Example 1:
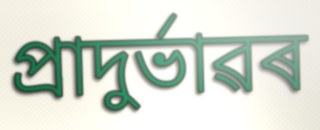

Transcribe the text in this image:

প্ৰাদুৰ্ভাৱৰ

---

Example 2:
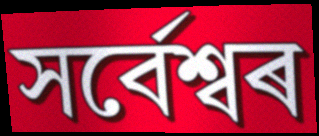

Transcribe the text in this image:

সৰ্বেশ্বৰ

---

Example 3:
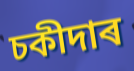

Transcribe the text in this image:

চকীদাৰ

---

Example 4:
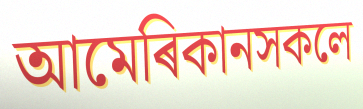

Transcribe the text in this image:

আমেৰিকানসকলে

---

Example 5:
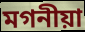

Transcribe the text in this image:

মগনীয়া